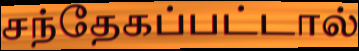
சந்தேகப்பட்டால்